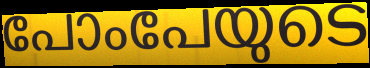
പോംപേയുടെ